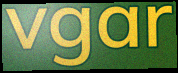
vgar